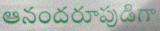
ఆనందరూపుడిగా